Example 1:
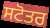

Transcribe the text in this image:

ਸਟੋਤਰ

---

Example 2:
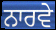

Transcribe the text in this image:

ਨਾਰਵੇ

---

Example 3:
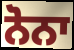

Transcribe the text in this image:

ਨੋਨਾ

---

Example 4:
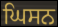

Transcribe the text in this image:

ਘਿਸਨ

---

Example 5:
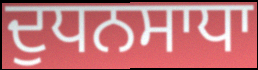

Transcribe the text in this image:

ਦੁਧਨਸਾਧਾ